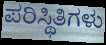
ಪರಿಸ್ಥಿತಿಗಳು